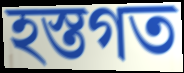
হস্তগত